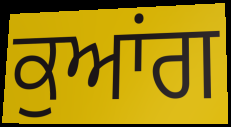
ਕੁਆਂਗ